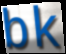
bk